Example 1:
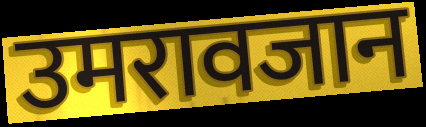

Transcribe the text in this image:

उमरावजान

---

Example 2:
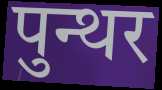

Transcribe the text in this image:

पुन्थर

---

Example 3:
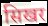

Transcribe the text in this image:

सिखर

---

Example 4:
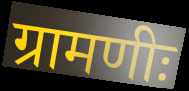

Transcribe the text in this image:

ग्रामणीः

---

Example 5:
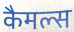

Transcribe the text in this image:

कैमल्स